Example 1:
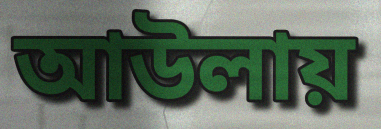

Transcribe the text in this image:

আউলায়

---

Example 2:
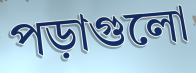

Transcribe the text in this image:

পড়াগুলো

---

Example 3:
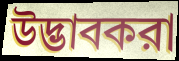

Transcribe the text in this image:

উদ্ভাবকরা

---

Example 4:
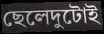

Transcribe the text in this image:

ছেলেদুটোই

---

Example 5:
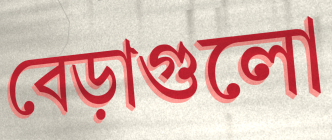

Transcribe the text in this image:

বেড়াগুলো